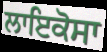
ਲਾਇਕੋਸਾ